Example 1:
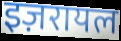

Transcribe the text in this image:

इज़रायल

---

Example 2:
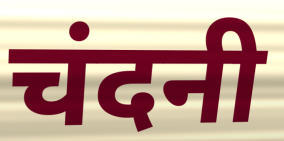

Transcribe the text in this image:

चंदनी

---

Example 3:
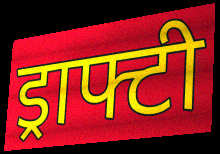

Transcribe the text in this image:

ड्राफ्टी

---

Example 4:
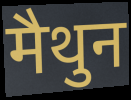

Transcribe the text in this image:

मैथुन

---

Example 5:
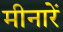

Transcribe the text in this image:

मीनारें